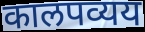
कालपव्यय